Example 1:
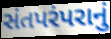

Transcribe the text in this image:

સંતપરંપરાનું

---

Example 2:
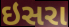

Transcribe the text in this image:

ઇસરા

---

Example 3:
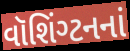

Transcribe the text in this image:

વૉશિંગ્ટનનાં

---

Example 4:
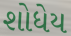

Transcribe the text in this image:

શોધેય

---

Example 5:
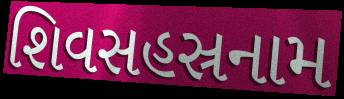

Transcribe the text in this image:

શિવસહસ્રનામ